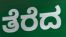
ತೆರೆದ